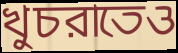
খুচরাতেও